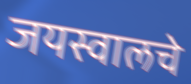
जयस्वालचे